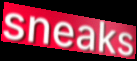
sneaks